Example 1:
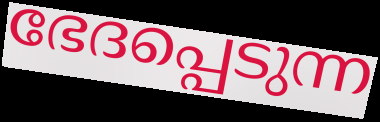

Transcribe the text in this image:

ഭേദപ്പെടുന്ന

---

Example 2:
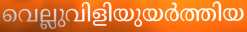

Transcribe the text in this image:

വെല്ലുവിളിയുയർത്തിയ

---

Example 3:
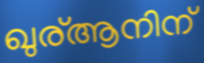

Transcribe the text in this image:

ഖുര്ആനിന്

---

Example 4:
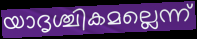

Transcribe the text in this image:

യാദൃശ്ചികമല്ലെന്ന്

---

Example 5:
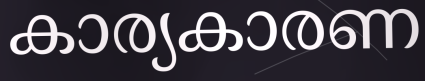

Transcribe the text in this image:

കാര്യകാരണ